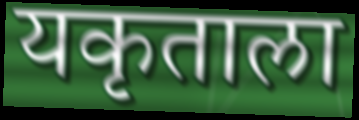
यकृताला